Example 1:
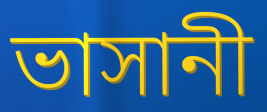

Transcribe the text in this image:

ভাসানী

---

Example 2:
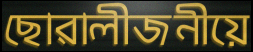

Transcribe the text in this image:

ছোৱালীজনীয়ে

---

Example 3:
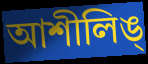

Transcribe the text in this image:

আশীলিঙ্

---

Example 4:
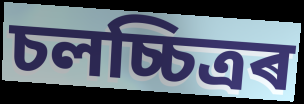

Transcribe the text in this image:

চলচ্চিত্ৰৰ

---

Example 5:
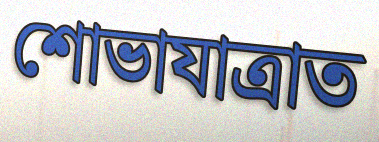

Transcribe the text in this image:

শোভাযাত্ৰাত